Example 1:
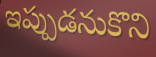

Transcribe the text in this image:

ఇప్పుడనుకొని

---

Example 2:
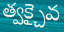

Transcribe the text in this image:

త్వక్చైవ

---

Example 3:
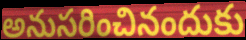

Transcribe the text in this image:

అనుసరించినందుకు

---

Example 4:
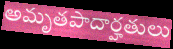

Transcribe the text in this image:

అమృతపాదార్హతులు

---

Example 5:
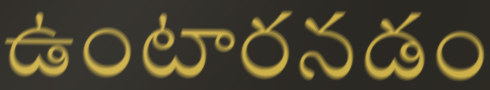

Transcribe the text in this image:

ఉంటారనడం